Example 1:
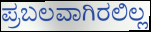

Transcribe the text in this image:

ಪ್ರಬಲವಾಗಿರಲಿಲ್ಲ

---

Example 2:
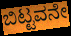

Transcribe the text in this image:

ಬಿಟ್ಟವನೇ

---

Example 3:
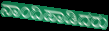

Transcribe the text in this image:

ನಾಂದಿಹಾಡಿದರು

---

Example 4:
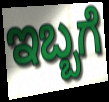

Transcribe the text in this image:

ಇಬ್ಬಗೆ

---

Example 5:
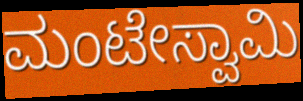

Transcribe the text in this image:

ಮಂಟೇಸ್ವಾಮಿ